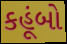
કહૂંબો